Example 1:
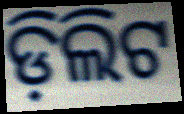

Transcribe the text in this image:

ଡ଼ିଲିଟ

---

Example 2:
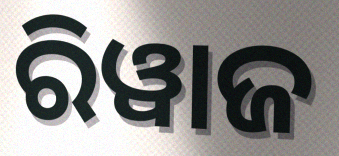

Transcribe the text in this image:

ରିୱାଜ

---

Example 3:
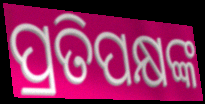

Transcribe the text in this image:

ପ୍ରତିପକ୍ଷଙ୍କ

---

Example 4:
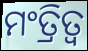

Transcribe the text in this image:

ମଂତ୍ରିତ୍ୱ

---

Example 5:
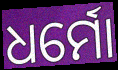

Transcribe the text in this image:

ଧର୍ମୋ